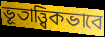
ভূতাত্ত্বিকভাবে